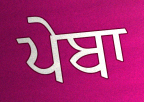
ਪੇਬਾ